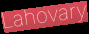
Lahovary